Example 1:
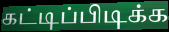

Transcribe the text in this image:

கட்டிப்பிடிக்க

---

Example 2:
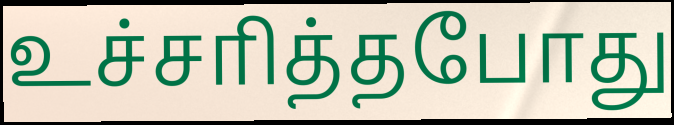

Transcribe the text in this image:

உச்சரித்தபோது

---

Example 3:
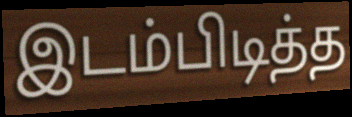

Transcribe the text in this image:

இடம்பிடித்த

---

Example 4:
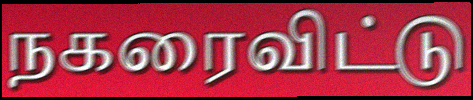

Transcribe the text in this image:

நகரைவிட்டு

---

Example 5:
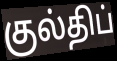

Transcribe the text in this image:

குல்திப்